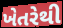
ખેતરેથી